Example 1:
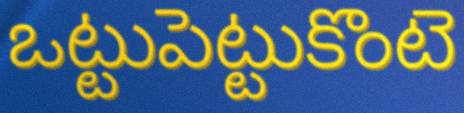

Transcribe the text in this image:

ఒట్టుపెట్టుకొంటె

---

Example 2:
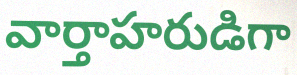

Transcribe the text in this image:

వార్తాహరుడిగా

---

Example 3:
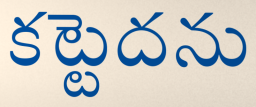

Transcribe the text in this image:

కట్టెదను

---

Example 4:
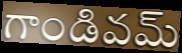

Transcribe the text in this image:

గాండివమ్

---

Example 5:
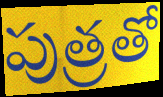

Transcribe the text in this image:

పుత్రతో